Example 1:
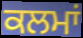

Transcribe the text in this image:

ਕਲਮਾਂ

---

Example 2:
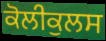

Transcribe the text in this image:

ਕੋਲੀਕੁਲਸ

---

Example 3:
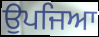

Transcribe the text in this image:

ਉਪਜਿਆ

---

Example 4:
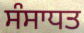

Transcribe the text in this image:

ਸੰਸਾਧਤ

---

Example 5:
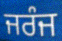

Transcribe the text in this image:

ਜਰੰਜ